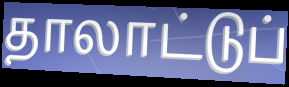
தாலாட்டுப்